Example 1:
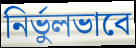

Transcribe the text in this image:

নির্ভুলভাবে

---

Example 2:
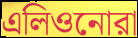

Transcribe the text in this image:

এলিওনোরা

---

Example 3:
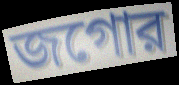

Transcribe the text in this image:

জগোর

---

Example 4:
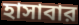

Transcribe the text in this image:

হাসাবার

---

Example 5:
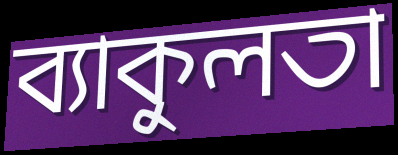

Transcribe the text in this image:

ব্যাকুলতা